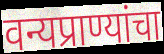
वन्यप्राण्यांचा